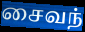
சைவந்